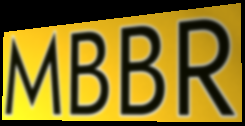
MBBR